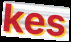
kes